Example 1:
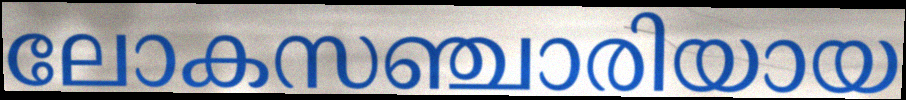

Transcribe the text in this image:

ലോകസഞ്ചാരിയായ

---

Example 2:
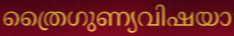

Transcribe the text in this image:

ത്രൈഗുണ്യവിഷയാ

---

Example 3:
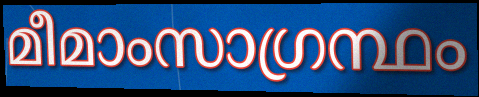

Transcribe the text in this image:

മീമാംസാഗ്രന്ഥം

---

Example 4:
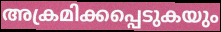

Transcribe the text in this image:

അക്രമിക്കപ്പെടുകയും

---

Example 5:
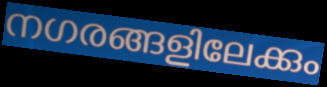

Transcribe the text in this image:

നഗരങ്ങളിലേക്കും